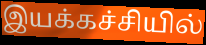
இயக்கச்சியில்